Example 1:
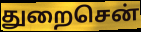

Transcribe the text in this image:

துறைசென்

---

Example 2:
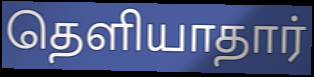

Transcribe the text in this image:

தெளியாதார்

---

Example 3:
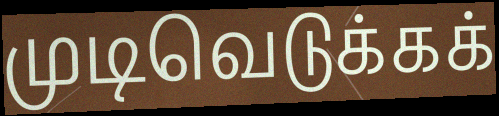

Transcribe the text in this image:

முடிவெடுக்கக்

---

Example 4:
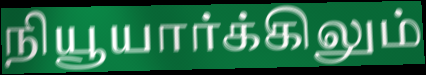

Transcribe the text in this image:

நியூயார்க்கிலும்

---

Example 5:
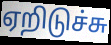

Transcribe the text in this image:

ஏறிடுச்சு